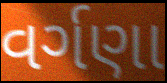
વર્ગણા